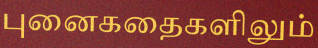
புனைகதைகளிலும்